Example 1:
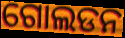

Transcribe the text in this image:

ଗୋଲଡନ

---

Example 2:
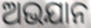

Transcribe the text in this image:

ଅଭଯାନ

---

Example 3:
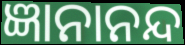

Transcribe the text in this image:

ଜ୍ଞାନାନନ୍ଦ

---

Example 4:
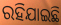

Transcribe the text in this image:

ରହିଯାଇଛି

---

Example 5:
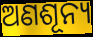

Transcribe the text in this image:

ଅଣଶୂନ୍ୟ